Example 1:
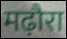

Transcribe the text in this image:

मढ़ौरा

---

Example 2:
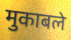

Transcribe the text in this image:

मुकाबले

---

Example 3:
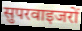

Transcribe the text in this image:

सुपरवाइजरों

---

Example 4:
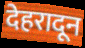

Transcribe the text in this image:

देहरादून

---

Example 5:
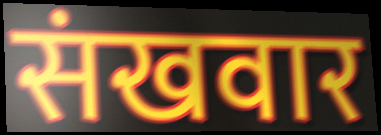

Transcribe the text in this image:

संखवार